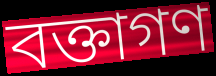
বক্তাগণ